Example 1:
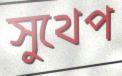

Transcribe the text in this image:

সুথেপ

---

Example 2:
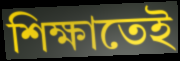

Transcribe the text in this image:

শিক্ষাতেই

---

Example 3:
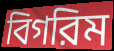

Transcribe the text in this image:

বিগরিম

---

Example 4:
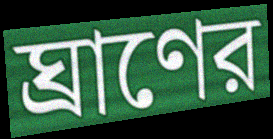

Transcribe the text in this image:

ঘ্রাণের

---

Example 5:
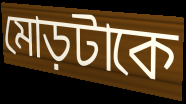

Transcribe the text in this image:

মোড়টাকে